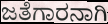
ಜತೆಗಾರನಾಗಿ